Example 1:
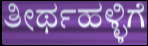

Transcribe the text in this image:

ತೀರ್ಥಹಳ್ಳಿಗೆ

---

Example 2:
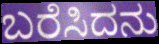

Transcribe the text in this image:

ಬರೆಸಿದನು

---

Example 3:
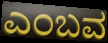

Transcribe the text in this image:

ಎಂಬವ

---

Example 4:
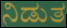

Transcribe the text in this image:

ನಿಡುತ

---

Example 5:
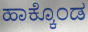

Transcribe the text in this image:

ಹಾಕ್ಕೊಂಡ